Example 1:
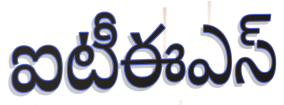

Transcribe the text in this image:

ఐటీఈఎస్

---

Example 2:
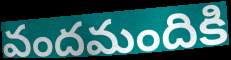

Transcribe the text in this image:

వందమందికి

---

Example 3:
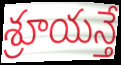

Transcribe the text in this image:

శ్రూయన్తే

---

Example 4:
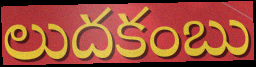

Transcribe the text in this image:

లుదకంబు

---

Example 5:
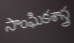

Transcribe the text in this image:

సాంఘికశాస్త్ర